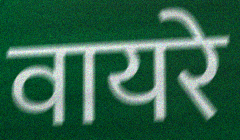
वायरे